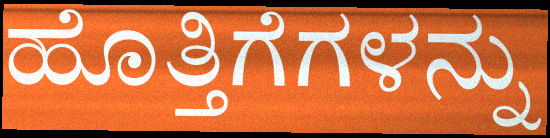
ಹೊತ್ತಿಗೆಗಳನ್ನು